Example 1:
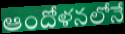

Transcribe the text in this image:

ఆందోళనలోనే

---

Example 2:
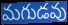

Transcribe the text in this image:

మగుడవు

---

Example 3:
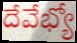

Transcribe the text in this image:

దేవేభ్యో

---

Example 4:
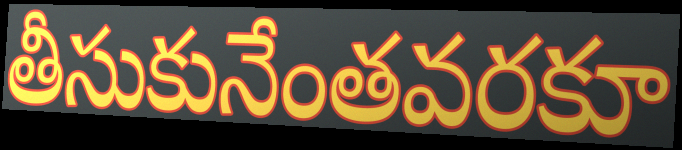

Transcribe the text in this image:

తీసుకునేంతవరకూ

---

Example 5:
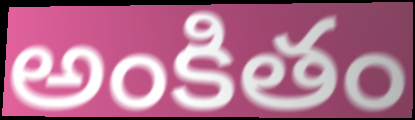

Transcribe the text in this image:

అంకితం